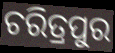
ଚରିତ୍ରପୁର